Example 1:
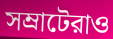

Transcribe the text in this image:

সম্রাটেরাও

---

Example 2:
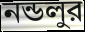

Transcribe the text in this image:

নন্ডলুর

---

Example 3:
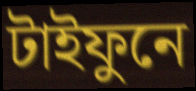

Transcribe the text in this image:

টাইফুনে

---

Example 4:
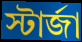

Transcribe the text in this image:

স্টার্জা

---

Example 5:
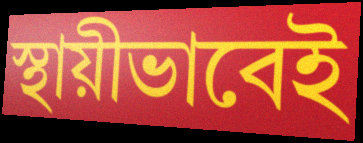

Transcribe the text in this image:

স্থায়ীভাবেই